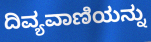
ದಿವ್ಯವಾಣಿಯನ್ನು